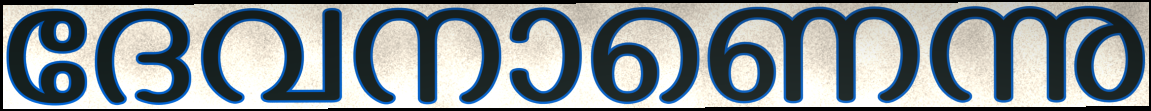
ദേവനാണെന്നു